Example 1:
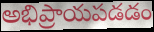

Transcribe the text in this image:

అభిప్రాయపడడం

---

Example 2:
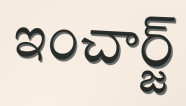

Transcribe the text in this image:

ఇంచార్జ్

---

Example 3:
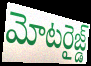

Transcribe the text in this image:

మోటరైజ్డ్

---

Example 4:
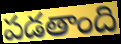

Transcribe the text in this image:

పడతాంది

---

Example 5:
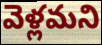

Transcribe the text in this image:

వెళ్లమని